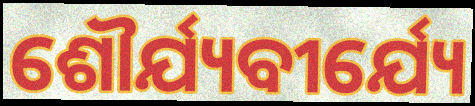
ଶୌର୍ଯ୍ୟବୀର୍ଯ୍ୟେ